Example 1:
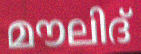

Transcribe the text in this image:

മൗലിദ്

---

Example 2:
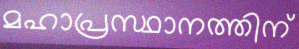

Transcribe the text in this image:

മഹാപ്രസ്ഥാനത്തിന്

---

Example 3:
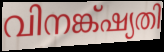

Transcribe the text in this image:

വിനങ്ക്ഷ്യതി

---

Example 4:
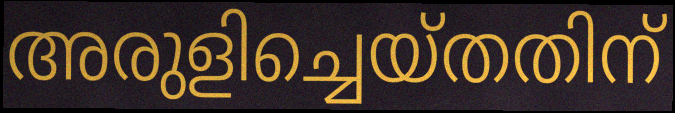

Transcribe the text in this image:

അരുളിച്ചെയ്തതിന്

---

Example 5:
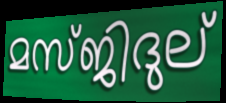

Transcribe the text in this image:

മസ്ജിദുല്